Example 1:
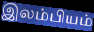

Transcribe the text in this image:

இலம்பியம்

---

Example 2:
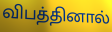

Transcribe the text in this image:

விபத்தினால்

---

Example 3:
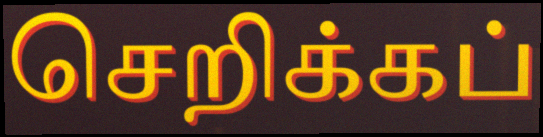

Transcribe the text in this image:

செறிக்கப்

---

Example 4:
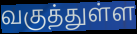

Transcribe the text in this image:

வகுத்துள்ள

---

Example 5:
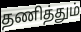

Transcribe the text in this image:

தணித்தும்